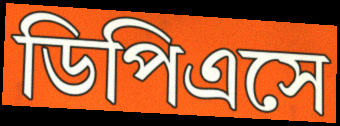
ডিপিএসে